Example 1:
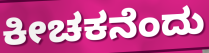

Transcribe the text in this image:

ಕೀಚಕನೆಂದು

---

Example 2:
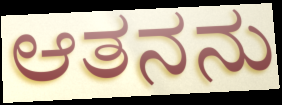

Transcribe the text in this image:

ಆತನನು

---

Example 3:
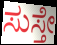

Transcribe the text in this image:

ಸುಸ್ತೇ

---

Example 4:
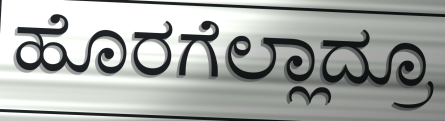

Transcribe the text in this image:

ಹೊರಗೆಲ್ಲಾದ್ರೂ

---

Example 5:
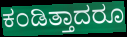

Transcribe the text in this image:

ಕಂಡಿತ್ತಾದರೂ